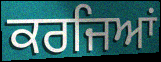
ਕਰਜਿਆਂ